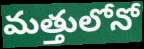
మత్తులోనో